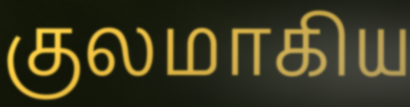
குலமாகிய